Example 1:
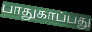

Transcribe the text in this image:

பாதுகாப்பது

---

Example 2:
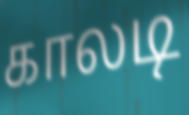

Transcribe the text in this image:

காலடி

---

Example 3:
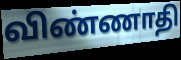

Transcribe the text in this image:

விண்ணாதி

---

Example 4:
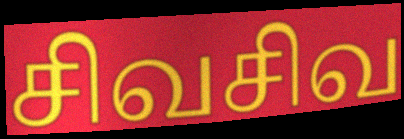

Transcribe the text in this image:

சிவசிவ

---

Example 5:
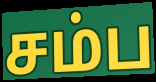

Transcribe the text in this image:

சம்ப